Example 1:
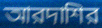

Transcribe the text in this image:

আরদাশির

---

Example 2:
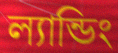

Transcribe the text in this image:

ল্যান্ডিং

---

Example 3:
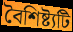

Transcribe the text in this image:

বৈশিষ্ট্যটি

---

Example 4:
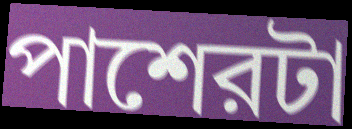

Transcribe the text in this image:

পাশেরটা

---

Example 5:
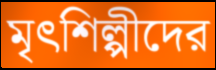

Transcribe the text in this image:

মৃৎশিল্পীদের